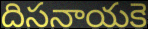
దిసనాయకె